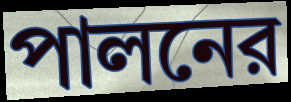
পালনের